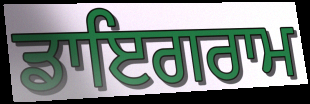
ਡਾਇਗਰਾਮ